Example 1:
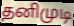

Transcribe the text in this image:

தனிமுடி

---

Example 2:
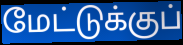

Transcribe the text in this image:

மேட்டுக்குப்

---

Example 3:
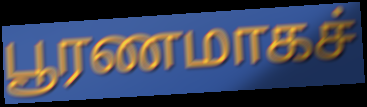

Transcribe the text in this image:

பூரணமாகச்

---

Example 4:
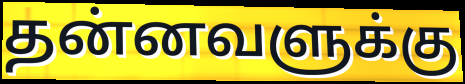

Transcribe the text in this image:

தன்னவளுக்கு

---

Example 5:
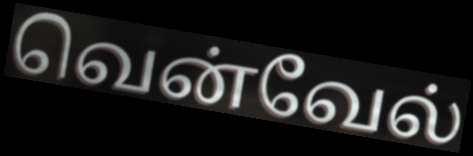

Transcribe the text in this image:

வென்வேல்